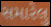
સમારેલુ